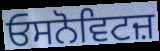
ਓਸਨੋਵਿਟਜ਼